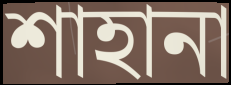
শাহানা